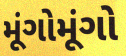
મૂંગોમૂંગો